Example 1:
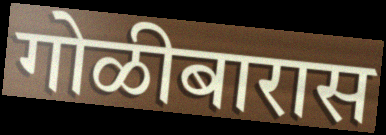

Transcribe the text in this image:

गोळीबारास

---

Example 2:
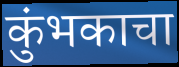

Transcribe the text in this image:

कुंभकाचा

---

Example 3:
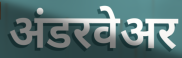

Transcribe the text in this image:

अंडरवेअर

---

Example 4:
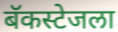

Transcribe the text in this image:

बॅकस्टेजला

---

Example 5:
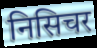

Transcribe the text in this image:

निसिचर